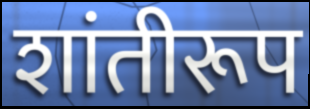
शांतीरूप